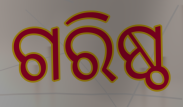
ଗରିଷ୍ଠ